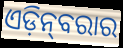
ଏଡ଼ିନ୍‍ବରାର